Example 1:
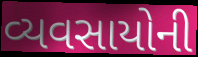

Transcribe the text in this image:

વ્યવસાયોની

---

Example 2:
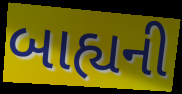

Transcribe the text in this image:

બાહ્યની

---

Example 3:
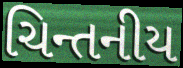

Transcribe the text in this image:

ચિન્તનીય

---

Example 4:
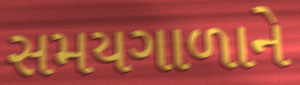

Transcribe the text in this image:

સમયગાળાને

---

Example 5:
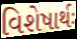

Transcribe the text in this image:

વિશેષાર્થઃ